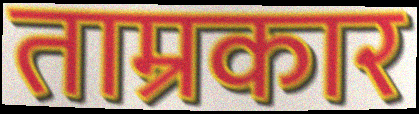
ताम्रकार